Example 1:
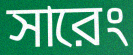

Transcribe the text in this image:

সারেং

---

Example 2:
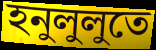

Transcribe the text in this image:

হনুলুলুতে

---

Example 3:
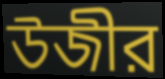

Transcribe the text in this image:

উজীর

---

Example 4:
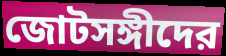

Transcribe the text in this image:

জোটসঙ্গীদের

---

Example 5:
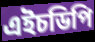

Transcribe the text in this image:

এইচডিপি